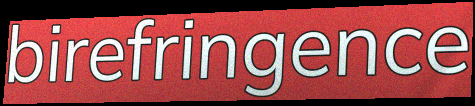
birefringence